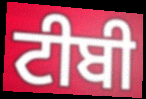
ਟੀਬੀ